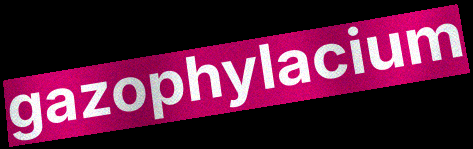
gazophylacium